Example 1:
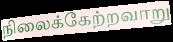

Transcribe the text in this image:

நிலைக்கேற்றவாறு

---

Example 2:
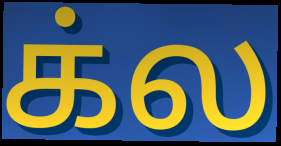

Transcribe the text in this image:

க்ல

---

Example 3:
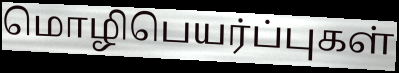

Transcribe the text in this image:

மொழிபெயர்ப்புகள்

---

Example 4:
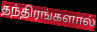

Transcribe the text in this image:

தந்திரங்களால்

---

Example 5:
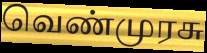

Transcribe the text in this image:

வெண்முரசு